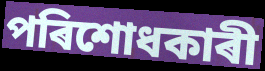
পৰিশোধকাৰী